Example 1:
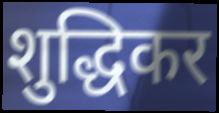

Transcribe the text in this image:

शुद्धिकर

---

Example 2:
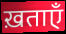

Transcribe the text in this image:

ख़ताएँ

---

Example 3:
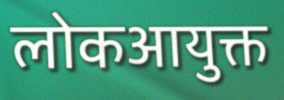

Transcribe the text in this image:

लोकआयुक्त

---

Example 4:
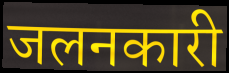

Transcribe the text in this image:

जलनकारी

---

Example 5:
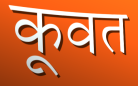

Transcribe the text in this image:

कूवत